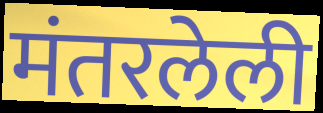
मंतरलेली